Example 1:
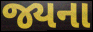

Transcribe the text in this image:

જ્યના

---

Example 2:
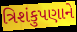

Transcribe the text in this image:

ત્રિશંકુપણાને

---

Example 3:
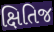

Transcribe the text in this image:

ક્ષિતિજ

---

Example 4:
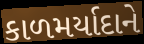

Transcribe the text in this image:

કાળમર્યાદાને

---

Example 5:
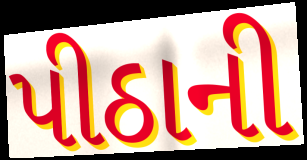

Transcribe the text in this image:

પીઠાની